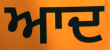
ਆਦ